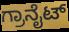
ಗ್ರಾನೈಟ್